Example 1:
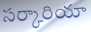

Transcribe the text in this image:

సర్కారియా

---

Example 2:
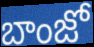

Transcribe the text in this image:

బాంజో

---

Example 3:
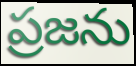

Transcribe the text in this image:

ప్రజను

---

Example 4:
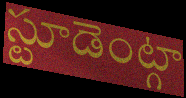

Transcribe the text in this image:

స్టూడెంట్గా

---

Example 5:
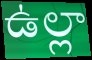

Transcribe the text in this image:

ఉల్లా